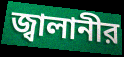
জ্বালানীর